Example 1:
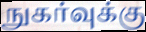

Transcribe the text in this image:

நுகர்வுக்கு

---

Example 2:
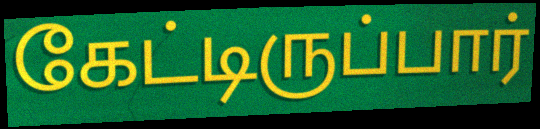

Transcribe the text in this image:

கேட்டிருப்பார்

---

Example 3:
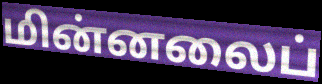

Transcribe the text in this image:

மின்னலைப்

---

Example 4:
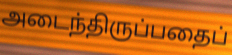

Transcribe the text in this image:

அடைந்திருப்பதைப்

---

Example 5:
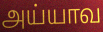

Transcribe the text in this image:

அய்யாவ